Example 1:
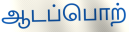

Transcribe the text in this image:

ஆடப்பொற்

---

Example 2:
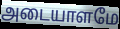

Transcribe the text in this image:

அடையாளமே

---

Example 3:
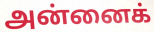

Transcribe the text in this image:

அன்னைக்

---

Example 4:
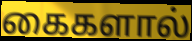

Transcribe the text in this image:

கைகளால்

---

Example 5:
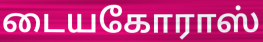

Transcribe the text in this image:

டையகோராஸ்